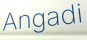
Angadi